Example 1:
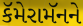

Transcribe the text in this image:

કૅમેરામૅનને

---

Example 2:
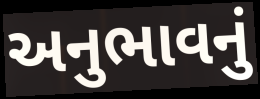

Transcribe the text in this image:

અનુભાવનું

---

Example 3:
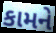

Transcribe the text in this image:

કામને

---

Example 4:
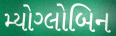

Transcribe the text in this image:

મ્યોગ્લોબિન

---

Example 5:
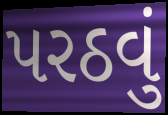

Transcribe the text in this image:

પરઠવું